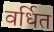
वर्धित